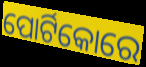
ପୋର୍ଟିକୋରେ